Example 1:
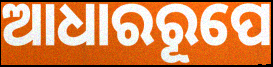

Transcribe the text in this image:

ଆଧାରରୂପେ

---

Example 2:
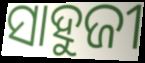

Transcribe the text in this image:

ସାହୁଜୀ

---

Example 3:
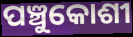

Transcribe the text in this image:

ପଞ୍ଚୁକୋଶୀ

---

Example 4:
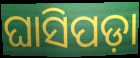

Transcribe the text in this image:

ଘାସିପଡ଼ା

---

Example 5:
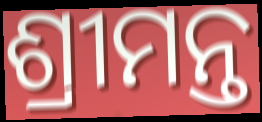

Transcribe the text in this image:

ଶ୍ରୀମନ୍ତ